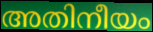
അതിനീയം